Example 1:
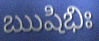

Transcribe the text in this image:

ఋషిభిః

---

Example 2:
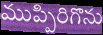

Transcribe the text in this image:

ముప్పిరిగొను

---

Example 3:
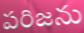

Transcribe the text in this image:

పరిజను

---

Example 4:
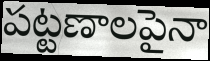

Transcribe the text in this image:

పట్టణాలపైనా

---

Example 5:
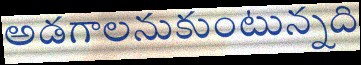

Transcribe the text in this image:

అడగాలనుకుంటున్నది